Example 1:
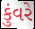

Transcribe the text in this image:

કુંવરે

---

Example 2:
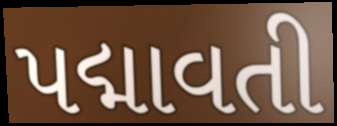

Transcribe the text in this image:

પદ્માવતી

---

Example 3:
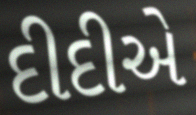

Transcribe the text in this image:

દીદીએ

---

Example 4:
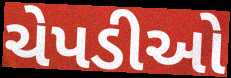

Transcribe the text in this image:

ચેપડીઓ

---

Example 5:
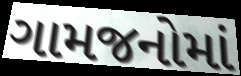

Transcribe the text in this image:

ગામજનોમાં